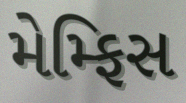
મેમ્ફિસ